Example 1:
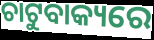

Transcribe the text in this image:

ଚାଟୁବାକ୍ୟରେ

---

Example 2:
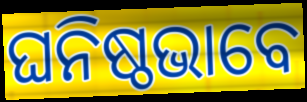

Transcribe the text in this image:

ଘନିଷ୍ଠଭାବେ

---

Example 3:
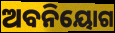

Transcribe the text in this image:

ଅବନିୟୋଗ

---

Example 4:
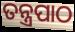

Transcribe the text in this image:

ତନ୍ତ୍ରପାଠ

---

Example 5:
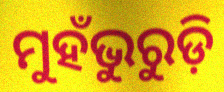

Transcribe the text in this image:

ମୁହଁଭୁରୁଡ଼ି